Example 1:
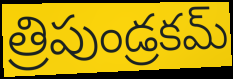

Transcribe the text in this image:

త్రిపుండ్రకమ్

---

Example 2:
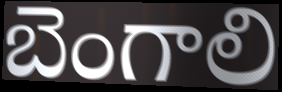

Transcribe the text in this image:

బెంగాలి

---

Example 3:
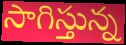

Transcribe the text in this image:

సాగిస్తున్న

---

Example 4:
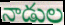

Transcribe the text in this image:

నాడుల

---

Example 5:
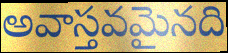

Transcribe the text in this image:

అవాస్తవమైనది